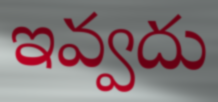
ఇవ్వదు